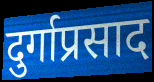
दुर्गाप्रसाद